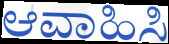
ಆವಾಹಿಸಿ